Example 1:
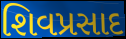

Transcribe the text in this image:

શિવપ્રસાદ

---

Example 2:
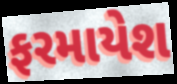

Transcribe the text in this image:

ફરમાયેશ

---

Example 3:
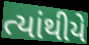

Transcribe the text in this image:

ત્યાંથીયે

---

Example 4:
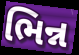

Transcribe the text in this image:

ભિન્ન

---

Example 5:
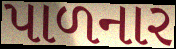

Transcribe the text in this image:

પાળનાર